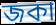
জকা